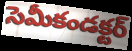
సెమీకండక్టర్